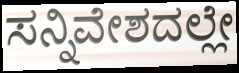
ಸನ್ನಿವೇಶದಲ್ಲೇ